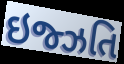
ઇજ્ઝતિ